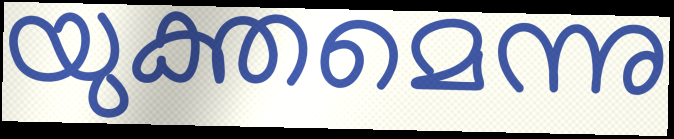
യുക്തമെന്നു